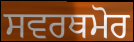
ਸਵਰਥਮੋਰ